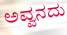
ಅವ್ವನದು